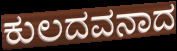
ಕುಲದವನಾದ